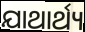
ଯାଥାର୍ଥ୍ୟ